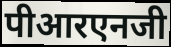
पीआरएनजी